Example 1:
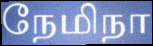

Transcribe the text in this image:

நேமிநா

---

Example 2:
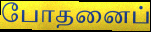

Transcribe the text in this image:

போதனைப்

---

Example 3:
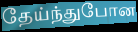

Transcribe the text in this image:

தேய்ந்துபோன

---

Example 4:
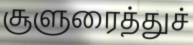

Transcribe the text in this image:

சூளுரைத்துச்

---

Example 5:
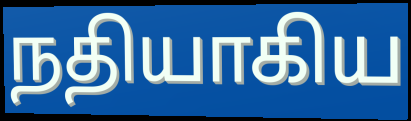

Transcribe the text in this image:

நதியாகிய